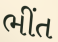
ભીંત